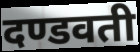
दण्डवती